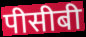
पीसीबी